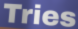
Tries